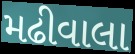
મઢીવાલા